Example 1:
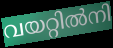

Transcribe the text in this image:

വയറ്റിൽനി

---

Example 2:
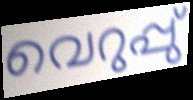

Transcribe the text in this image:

വെറുപ്പു്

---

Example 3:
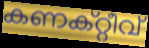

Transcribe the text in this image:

കണക്റ്റീവ്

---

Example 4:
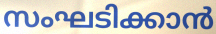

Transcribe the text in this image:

സംഘടിക്കാൻ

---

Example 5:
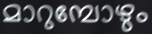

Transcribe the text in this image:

മാറുമ്പോഴും